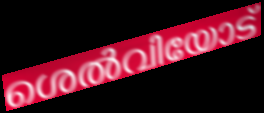
ശെൽവിയോട്